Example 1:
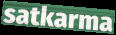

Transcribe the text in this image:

satkarma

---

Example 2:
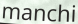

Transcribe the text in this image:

manchi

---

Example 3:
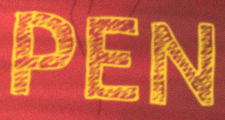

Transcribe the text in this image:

PEN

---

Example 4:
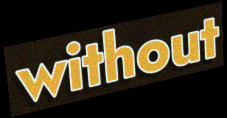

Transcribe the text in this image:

without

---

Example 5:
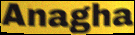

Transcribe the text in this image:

Anagha